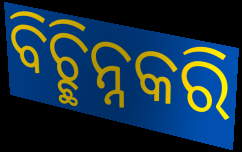
ବିଚ୍ଛିନ୍ନକରି